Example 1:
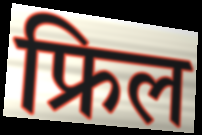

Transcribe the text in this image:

फ्रिल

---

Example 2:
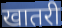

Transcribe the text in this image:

खातरी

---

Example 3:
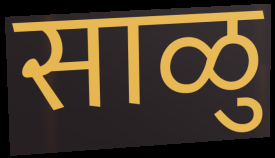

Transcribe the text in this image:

साळु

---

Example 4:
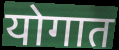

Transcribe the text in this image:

योगात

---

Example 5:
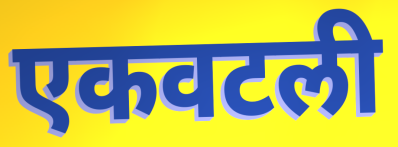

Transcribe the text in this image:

एकवटली